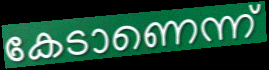
കേടാണെന്ന്